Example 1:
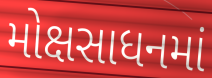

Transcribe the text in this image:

મોક્ષસાધનમાં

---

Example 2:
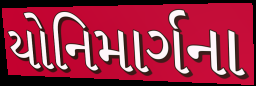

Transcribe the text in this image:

યોનિમાર્ગના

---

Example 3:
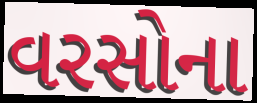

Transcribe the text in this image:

વરસોના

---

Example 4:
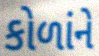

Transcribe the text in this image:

કોળાંને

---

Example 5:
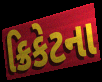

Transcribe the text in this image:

ક્રિકેટના